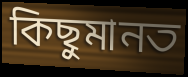
কিছুমানত